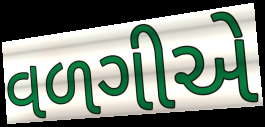
વળગીએ